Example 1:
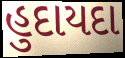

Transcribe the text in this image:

હુદાયદા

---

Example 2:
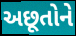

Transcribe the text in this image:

અછૂતોને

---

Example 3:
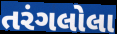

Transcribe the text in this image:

તરંગલોલા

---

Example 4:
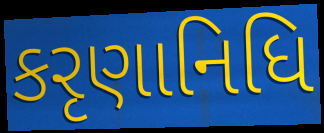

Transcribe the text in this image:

કરૃણાનિધિ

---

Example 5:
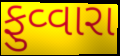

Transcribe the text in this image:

ફુવ્વારા